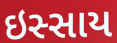
ઇસ્સાય